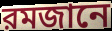
রমজানে